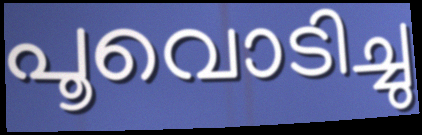
പൂവൊടിച്ചു